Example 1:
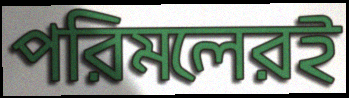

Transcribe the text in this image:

পরিমলেরই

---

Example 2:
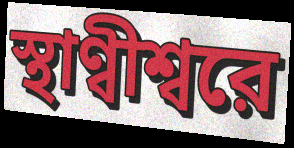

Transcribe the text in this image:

স্থাণ্বীশ্বরে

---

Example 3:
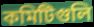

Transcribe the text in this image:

কমিটিগুলি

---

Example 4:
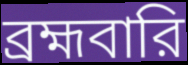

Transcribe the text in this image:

ব্রহ্মবারি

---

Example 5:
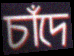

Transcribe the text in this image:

চাঁদে